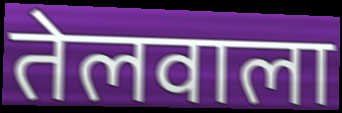
तेलवाला